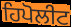
ਹਿਪੋਲੀਟ